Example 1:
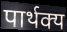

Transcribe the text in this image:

पार्थक्य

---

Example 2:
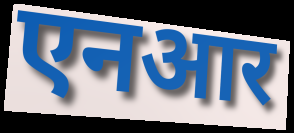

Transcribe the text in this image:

एनआर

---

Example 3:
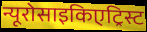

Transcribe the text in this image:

न्यूरोसाइकिएट्रिस्ट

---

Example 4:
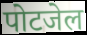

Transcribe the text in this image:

पोटजेल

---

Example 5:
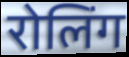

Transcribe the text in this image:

रोलिंग